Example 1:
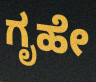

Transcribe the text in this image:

ಗೃಹೇ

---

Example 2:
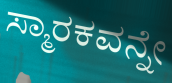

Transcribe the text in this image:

ಸ್ಮಾರಕವನ್ನೇ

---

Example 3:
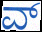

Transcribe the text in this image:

ವ್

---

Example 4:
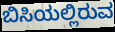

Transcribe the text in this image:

ಬಿಸಿಯಲ್ಲಿರುವ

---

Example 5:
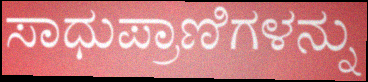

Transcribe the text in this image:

ಸಾಧುಪ್ರಾಣಿಗಳನ್ನು